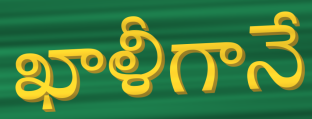
ఖాళీగానే